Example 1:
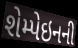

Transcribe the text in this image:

શેમ્પેઇનની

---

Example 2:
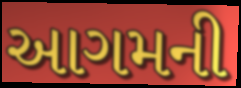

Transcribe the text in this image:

આગમની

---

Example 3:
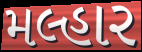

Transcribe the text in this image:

મલ્હાર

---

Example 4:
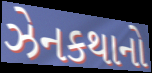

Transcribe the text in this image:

ઝેનકથાનો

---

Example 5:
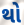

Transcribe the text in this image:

થો